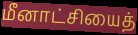
மீனாட்சியைத்